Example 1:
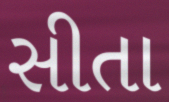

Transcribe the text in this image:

સીતા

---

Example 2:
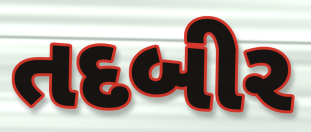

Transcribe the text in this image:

તદબીર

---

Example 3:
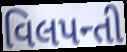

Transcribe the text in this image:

વિલપન્તી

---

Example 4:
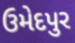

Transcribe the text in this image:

ઉમેદપુર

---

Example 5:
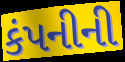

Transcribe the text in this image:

કંપનીની